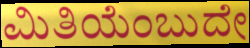
ಮಿತಿಯೆಂಬುದೇ